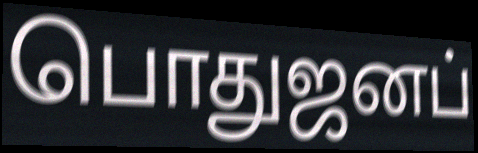
பொதுஜனப்